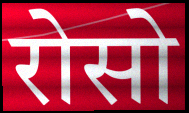
रोसो